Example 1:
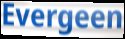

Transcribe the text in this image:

Evergeen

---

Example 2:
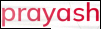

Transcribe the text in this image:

prayash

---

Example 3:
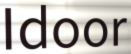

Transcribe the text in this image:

Idoor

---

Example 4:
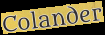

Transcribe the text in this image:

Colander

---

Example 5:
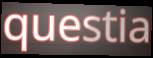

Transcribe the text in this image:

questia